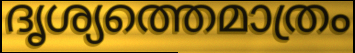
ദൃശ്യത്തെമാത്രം